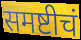
समष्टीचं